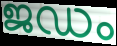
ജഡം